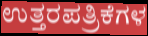
ಉತ್ತರಪತ್ರಿಕೆಗಳ